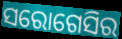
ସରୋଗେସିର